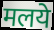
मलये